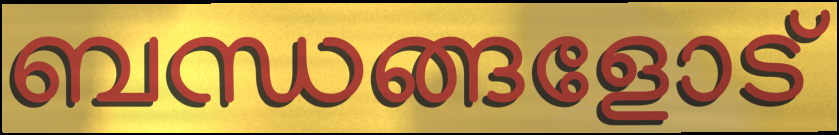
ബന്ധങ്ങളോട്